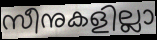
സീനുകളില്ലാ